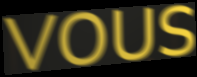
VOUS